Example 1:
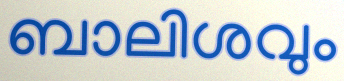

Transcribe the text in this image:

ബാലിശവും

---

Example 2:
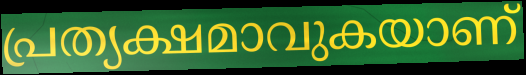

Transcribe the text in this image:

പ്രത്യക്ഷമാവുകയാണ്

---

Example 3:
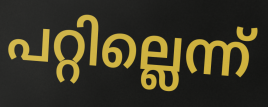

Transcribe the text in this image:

പറ്റില്ലെന്ന്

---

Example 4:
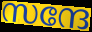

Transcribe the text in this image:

സന്ദേ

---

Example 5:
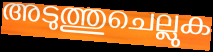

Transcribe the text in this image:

അടുത്തുചെല്ലുക